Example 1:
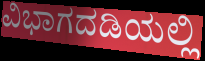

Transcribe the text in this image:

ವಿಭಾಗದಡಿಯಲ್ಲಿ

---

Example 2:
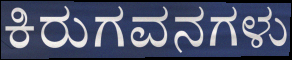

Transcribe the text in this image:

ಕಿರುಗವನಗಳು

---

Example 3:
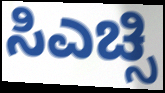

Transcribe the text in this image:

ಸಿಎಚ್ಸಿ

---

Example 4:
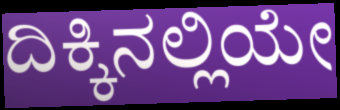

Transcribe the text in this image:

ದಿಕ್ಕಿನಲ್ಲಿಯೇ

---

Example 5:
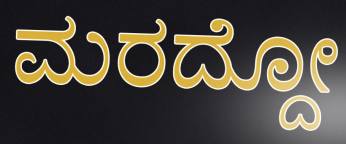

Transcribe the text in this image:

ಮರದ್ದೋ